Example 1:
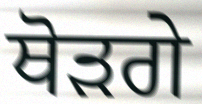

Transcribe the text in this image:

ਥੋੜਗੇ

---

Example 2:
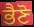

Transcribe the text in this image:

ਭੈਣੋ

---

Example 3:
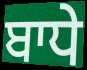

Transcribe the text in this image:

ਬਾਧੇ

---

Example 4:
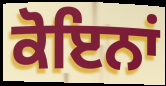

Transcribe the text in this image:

ਕੋਇਨਾਂ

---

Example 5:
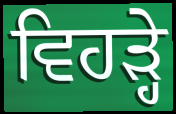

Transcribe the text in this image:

ਵਿਹੜ੍ਹੇ